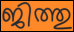
ജിത്തു